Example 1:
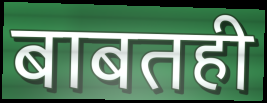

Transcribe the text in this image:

बाबतही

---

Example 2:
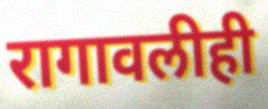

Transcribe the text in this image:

रागावलीही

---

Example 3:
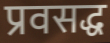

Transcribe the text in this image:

प्रवसद्ध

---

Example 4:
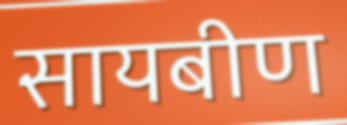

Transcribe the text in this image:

सायबीण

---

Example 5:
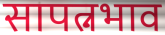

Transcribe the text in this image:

सापत्नभाव